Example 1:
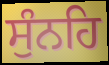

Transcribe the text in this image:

ਸੁੰਨਹਿ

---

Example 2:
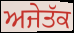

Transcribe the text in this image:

ਅਜੇਤੱਕ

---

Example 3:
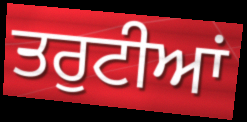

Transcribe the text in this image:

ਤਰੁਟੀਆਂ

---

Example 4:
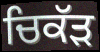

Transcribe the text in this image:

ਚਿਕੱੜ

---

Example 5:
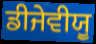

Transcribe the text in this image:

ਡੀਜੇਵੀਯੂ